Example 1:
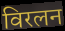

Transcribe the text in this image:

विरलन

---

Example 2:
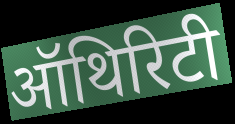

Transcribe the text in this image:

ऑथिरिटी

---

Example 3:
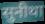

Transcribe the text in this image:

सुनीथा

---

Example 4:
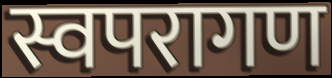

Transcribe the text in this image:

स्वपरागण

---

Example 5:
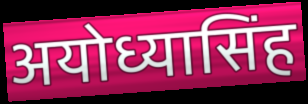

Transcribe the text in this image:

अयोध्यासिंह